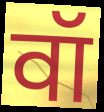
वॉ